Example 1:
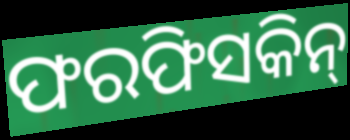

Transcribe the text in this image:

ଫରଫିସକିନ୍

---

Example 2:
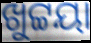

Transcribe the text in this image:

ଖୁଟ୍ଟୟା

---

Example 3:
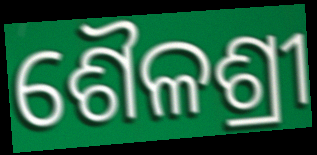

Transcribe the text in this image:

ଶୈଳଶ୍ରୀ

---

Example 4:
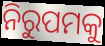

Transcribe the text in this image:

ନିରୁପମକୁ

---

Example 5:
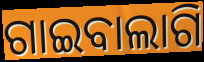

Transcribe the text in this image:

ଗାଇବାଲାଗି